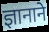
ज्ञानाने